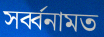
সৰ্ব্বনামত